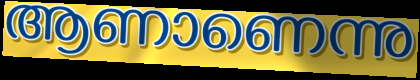
ആണാണെന്നു